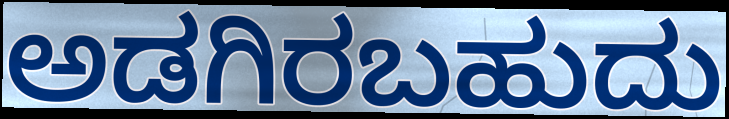
ಅಡಗಿರಬಹುದು